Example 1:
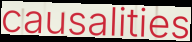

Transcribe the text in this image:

causalities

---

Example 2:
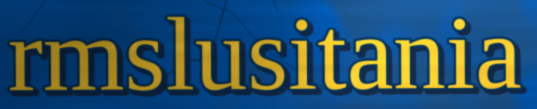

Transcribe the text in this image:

rmslusitania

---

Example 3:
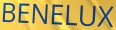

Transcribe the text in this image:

BENELUX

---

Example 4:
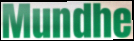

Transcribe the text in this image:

Mundhe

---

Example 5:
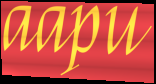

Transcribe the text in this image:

aapu